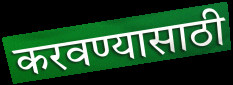
करवण्यासाठी